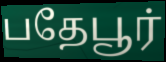
பதேபூர்